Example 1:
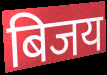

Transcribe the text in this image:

बिजय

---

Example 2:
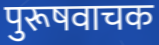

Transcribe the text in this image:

पुरूषवाचक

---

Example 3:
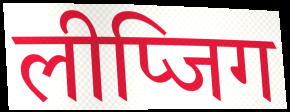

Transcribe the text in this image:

लीप्जिग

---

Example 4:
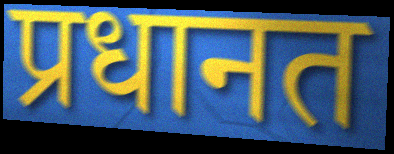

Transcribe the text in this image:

प्रधानत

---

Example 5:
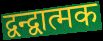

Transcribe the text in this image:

द्वन्द्वात्मक